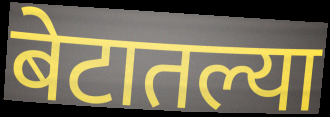
बेटातल्या